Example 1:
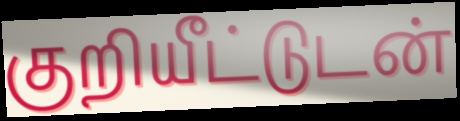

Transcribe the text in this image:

குறியீட்டுடன்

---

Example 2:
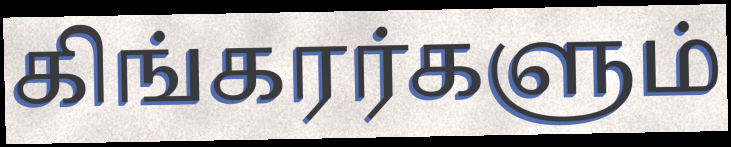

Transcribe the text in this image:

கிங்கரர்களும்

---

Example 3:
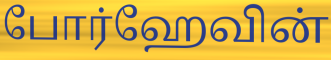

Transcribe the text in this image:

போர்ஹேவின்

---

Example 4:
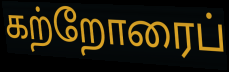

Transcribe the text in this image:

கற்றோரைப்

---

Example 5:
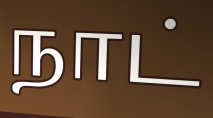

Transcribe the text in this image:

நாட்